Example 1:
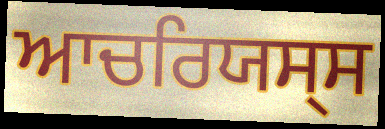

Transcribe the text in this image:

ਆਚਰਿਯਸ੍ਸ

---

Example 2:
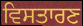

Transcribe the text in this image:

ਵਿਸਤਾਰਣ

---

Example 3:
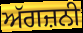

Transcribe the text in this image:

ਅੱਗਜ਼ਨੀ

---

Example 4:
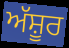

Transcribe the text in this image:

ਅੱਸ਼ੂਰ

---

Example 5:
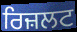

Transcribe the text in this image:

ਰਿਜ਼ਲਟ